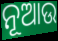
ନୂଆଉ